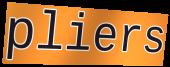
pliers